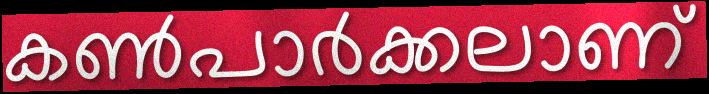
കൺപാർക്കലാണ്